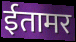
ईतामर